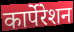
कार्पेरेशन